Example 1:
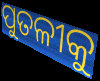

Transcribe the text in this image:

ପୁତଳୀକୁ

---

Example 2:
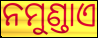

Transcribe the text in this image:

ନମୁଣ୍ଡାଏ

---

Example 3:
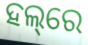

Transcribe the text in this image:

ହଲ୍‌ରେ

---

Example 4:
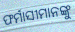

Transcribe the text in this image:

ଫର୍ମାସୀମାନଙ୍କୁ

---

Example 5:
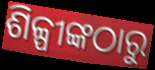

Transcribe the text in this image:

ଶିଳ୍ପୀଙ୍କଠାରୁ